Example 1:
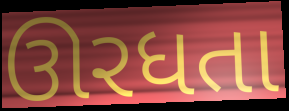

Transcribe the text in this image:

ઊરધતા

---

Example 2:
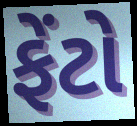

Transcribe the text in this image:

ફેંટો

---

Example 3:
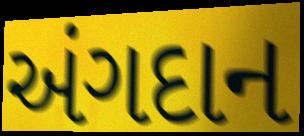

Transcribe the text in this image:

અંગદાન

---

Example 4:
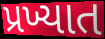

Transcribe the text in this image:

પ્રખ્યાત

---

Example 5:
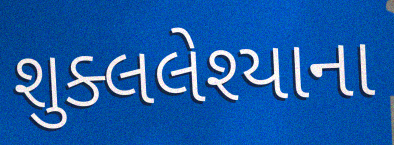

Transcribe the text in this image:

શુક્લલેશ્યાના